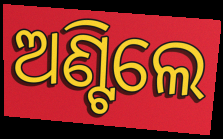
ଅଣ୍ଟିଲେ